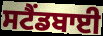
ਸਟੈਂਡਬਾਈ